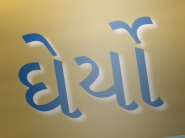
ઘેર્યો